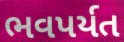
ભવપર્યત